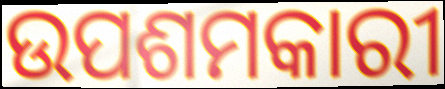
ଉପଶମକାରୀ